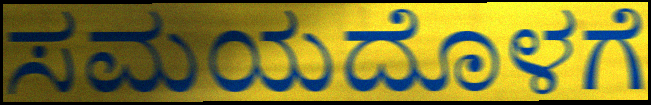
ಸಮಯದೊಳಗೆ